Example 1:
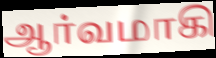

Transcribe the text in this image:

ஆர்வமாகி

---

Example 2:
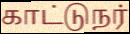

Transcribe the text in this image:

காட்டுநர்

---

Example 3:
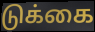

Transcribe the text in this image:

டுக்கை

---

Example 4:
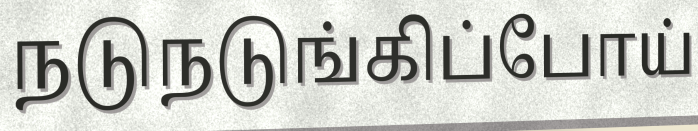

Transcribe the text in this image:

நடுநடுங்கிப்போய்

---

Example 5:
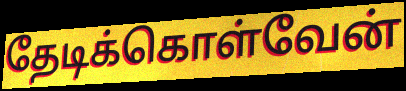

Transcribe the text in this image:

தேடிக்கொள்வேன்